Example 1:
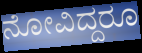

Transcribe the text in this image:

ನೋವಿದ್ದರೂ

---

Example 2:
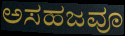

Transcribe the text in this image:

ಅಸಹಜವೂ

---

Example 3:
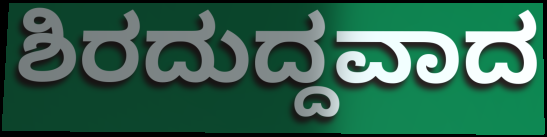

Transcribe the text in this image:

ಶಿರದುದ್ದವಾದ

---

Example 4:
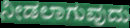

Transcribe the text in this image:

ನೀಡಲಾಗುವುದು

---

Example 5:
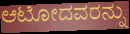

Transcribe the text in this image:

ಆಟೋದವರನ್ನು